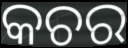
କଚର